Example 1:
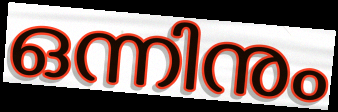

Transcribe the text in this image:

ഒന്നിനും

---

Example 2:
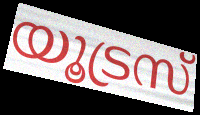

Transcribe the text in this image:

യൂട്രസ്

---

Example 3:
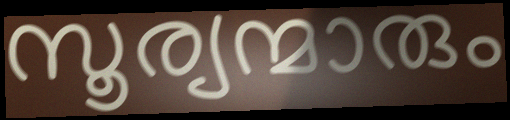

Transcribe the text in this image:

സൂര്യന്മാരും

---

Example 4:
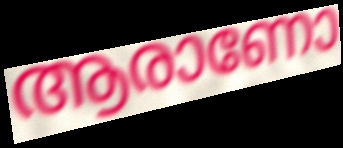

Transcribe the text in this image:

ആരാണോ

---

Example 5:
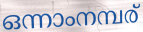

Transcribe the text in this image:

ഒന്നാംനമ്പര്